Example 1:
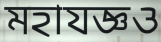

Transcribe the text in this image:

মহাযজ্ঞও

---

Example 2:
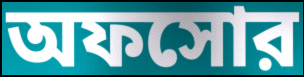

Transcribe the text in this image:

অফসোর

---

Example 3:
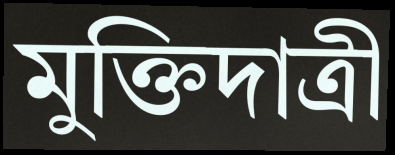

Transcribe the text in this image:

মুক্তিদাত্রী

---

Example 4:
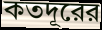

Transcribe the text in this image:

কতদূরের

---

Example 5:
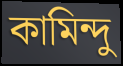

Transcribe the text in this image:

কামিন্দু